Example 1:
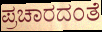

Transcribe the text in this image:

ಪ್ರಚಾರದಂತೆ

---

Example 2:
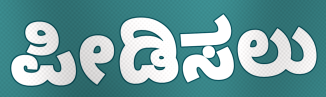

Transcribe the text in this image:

ಪೀಡಿಸಲು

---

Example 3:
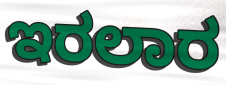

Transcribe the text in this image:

ಇರಲಾರ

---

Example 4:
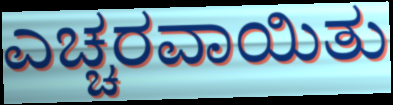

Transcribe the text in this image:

ಎಚ್ಚರವಾಯಿತು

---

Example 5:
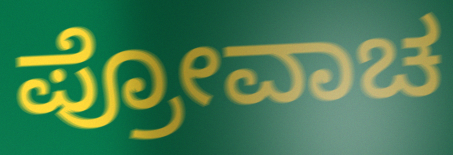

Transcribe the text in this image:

ಪ್ರೋವಾಚ